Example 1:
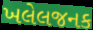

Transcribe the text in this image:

ખલેલજનક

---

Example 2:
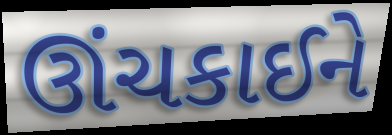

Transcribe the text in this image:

ઊંચકાઈને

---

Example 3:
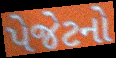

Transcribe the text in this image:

પેજેટનો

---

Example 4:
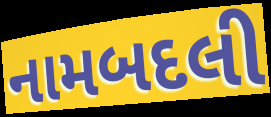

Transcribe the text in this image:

નામબદલી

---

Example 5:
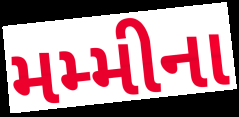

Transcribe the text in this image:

મમ્મીના